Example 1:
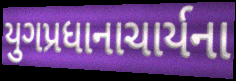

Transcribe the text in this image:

યુગપ્રધાનાચાર્યના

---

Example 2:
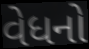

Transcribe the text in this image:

વેધનો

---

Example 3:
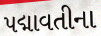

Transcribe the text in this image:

પદ્માવતીના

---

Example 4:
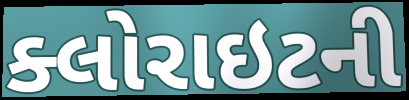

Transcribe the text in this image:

ક્લોરાઇટની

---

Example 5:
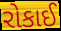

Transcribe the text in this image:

રોકાઈ